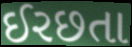
ઈરછતા